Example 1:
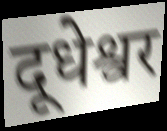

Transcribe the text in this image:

दूधेश्वर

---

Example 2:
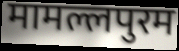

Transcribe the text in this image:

मामल्लपुरम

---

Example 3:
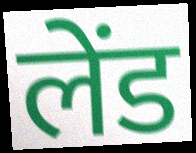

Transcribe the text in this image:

लेंड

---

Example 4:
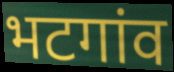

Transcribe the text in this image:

भटगांव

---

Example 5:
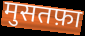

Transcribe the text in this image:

मुसतफ़ा